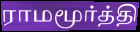
ராமமூர்த்தி